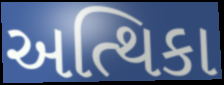
અત્થિકા